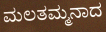
ಮಲತಮ್ಮನಾದ